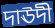
দাঊদী